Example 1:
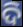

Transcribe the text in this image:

ଦି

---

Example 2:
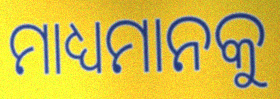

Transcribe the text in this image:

ମାଧ୍ୟମାନକୁ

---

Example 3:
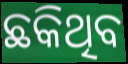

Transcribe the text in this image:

ଛକିଥିବ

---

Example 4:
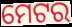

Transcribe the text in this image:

ମେଟର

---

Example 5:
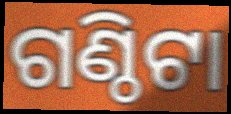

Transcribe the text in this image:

ଗଣ୍ଠିଟା